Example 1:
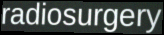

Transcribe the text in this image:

radiosurgery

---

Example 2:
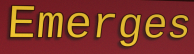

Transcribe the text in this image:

Emerges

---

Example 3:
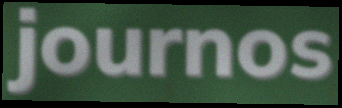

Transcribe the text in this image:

journos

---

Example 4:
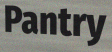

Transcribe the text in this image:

Pantry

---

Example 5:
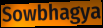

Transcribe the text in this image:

Sowbhagya